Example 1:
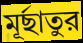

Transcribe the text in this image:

মূর্ছাতুর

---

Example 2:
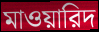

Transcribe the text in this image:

মাওয়ারিদ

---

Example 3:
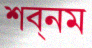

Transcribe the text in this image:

শব্নম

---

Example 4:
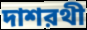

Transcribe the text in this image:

দাশরথী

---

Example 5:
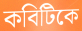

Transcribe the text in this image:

কবিটিকে